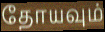
தோயவும்